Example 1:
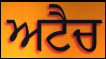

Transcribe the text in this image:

ਅਟੈਚ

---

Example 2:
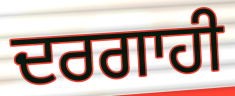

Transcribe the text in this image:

ਦਰਗਾਹੀ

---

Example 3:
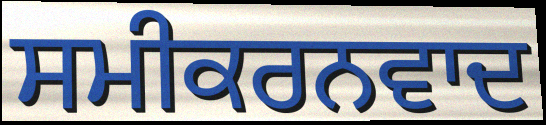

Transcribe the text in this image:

ਸਮੀਕਰਨਵਾਦ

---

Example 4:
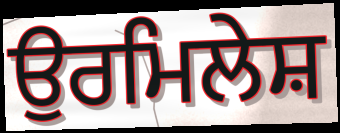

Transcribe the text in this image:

ਉਰਮਿਲੇਸ਼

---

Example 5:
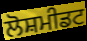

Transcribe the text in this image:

ਲੋਸ਼ਮੀਡਟ